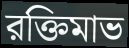
রক্তিমাভ